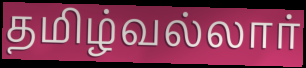
தமிழ்வல்லார்